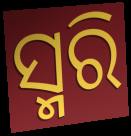
ସ୍ମରି